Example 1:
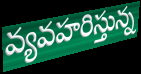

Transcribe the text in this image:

వ్యవహరిస్తున్న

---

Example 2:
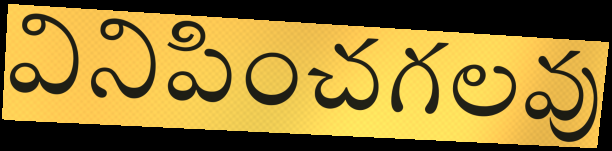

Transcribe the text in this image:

వినిపించగలవు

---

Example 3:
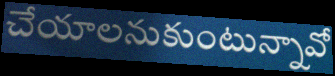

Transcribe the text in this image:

చేయాలనుకుంటున్నావో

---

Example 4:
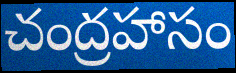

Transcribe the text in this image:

చంద్రహాసం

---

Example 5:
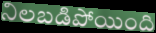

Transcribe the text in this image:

నిలబడిపోయింది